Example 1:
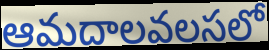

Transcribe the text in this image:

ఆమదాలవలసలో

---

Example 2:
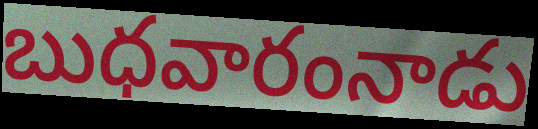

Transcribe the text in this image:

బుధవారంనాడు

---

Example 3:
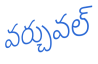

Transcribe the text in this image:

వర్చువల్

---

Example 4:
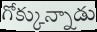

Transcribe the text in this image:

గోక్కున్నాడు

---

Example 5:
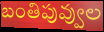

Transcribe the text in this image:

బంతిపువ్వుల